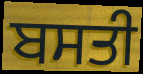
ਬਸਤੀ